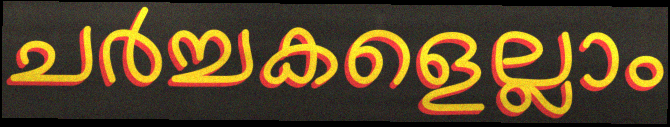
ചർച്ചകളെല്ലാം